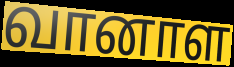
வானாள